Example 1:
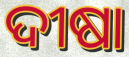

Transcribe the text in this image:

ଦୀଷା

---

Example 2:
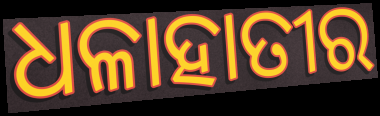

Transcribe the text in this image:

ଧଳାହାତୀର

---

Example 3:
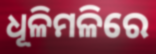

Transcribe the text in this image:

ଧୂଳିମଳିରେ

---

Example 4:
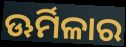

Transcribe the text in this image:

ଊର୍ମିଳାର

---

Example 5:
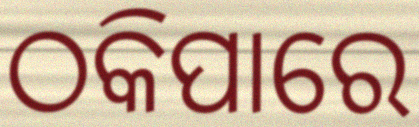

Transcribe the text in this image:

ଠକିପାରେ